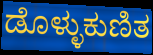
ಡೊಳ್ಳುಕುಣಿತ